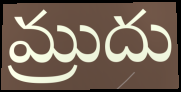
మ్రుదు